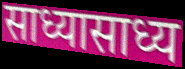
साध्यासाध्य